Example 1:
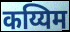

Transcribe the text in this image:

कय्यिम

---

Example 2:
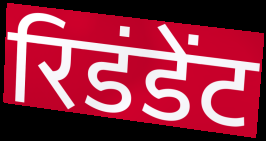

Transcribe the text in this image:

रिडंडेंट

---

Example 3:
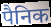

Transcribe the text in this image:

पैनिक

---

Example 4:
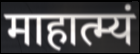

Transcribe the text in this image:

माहात्म्यं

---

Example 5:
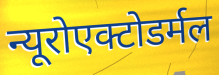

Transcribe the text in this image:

न्यूरोएक्टोडर्मल